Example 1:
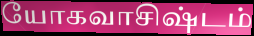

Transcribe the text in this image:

யோகவாசிஷ்டம்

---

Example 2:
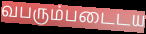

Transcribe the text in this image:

வபரும்படைடய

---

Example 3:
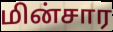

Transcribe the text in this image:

மின்சார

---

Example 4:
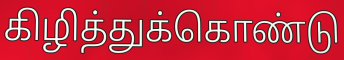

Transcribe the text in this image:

கிழித்துக்கொண்டு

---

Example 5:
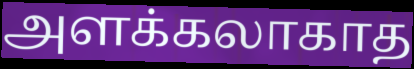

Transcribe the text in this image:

அளக்கலாகாத